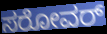
ಸರೋವರ್